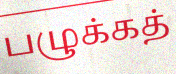
பழுக்கத்